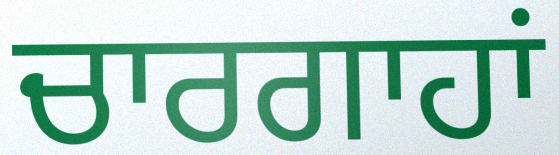
ਚਾਰਗਾਹਾਂ